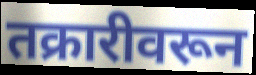
तक्रारीवरून